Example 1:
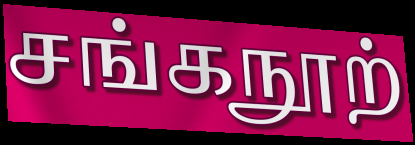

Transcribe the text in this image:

சங்கநூற்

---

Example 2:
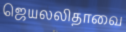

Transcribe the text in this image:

ஜெயலலிதாவை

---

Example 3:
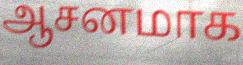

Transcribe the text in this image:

ஆசனமாக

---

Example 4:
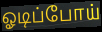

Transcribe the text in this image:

ஓடிப்போய்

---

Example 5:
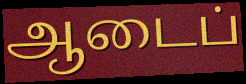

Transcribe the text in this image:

ஆடைப்